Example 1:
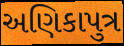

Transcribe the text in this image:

અણિકાપુત્ર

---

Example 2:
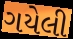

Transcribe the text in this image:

ગયેલી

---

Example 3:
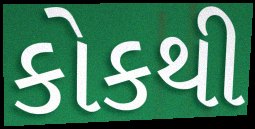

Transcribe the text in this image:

કોકથી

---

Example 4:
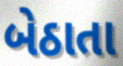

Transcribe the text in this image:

બેઠાતા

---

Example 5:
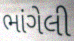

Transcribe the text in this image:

ભાંગેલી